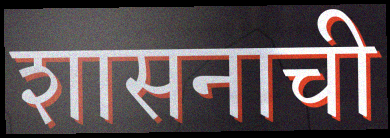
शासनाची